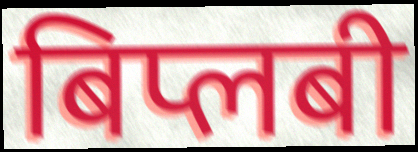
बिप्लबी